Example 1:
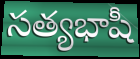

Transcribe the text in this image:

సత్యభాషీ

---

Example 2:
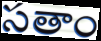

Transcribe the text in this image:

సతాం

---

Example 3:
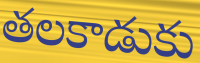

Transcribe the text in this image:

తలకాడుకు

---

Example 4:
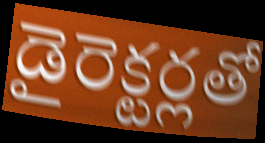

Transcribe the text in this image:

డైరెక్టర్లతో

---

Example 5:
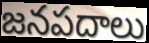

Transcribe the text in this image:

జనపదాలు